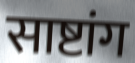
साष्टांग